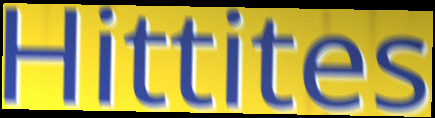
Hittites